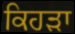
ਕਿਹੜਾ